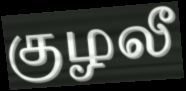
குழலீ